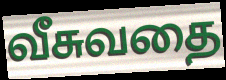
வீசுவதை